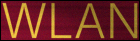
WLAN